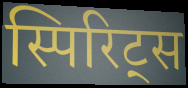
स्पिरिट्स